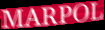
MARPOL